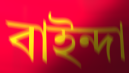
বাইন্দা